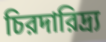
চিরদারিদ্র্য